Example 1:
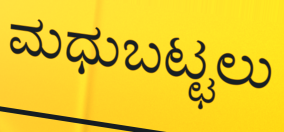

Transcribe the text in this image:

ಮಧುಬಟ್ಟಲು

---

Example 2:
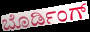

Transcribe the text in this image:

ಬೊರ್ಡಿಂಗ್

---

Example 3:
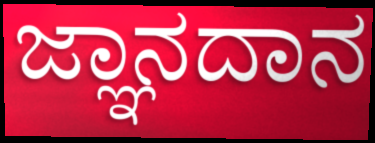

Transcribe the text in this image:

ಜ್ಞಾನದಾನ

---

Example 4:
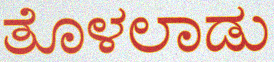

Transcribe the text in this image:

ತೊಳಲಾಡು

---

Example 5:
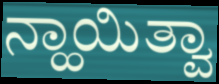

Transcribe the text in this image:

ನ್ಹಾಯಿತ್ವಾ